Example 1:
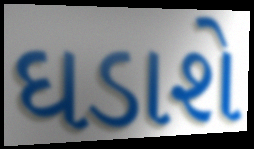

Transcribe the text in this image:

ઘડાશે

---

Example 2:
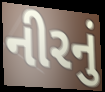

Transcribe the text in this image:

નીરનું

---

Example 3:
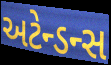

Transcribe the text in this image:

અટેન્ડન્સ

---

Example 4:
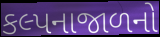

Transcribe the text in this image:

કલ્પનાજાળનો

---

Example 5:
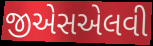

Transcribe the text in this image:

જીએસએલવી